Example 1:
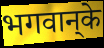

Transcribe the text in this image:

भगवान्‌के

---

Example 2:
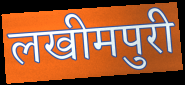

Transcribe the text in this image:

लखीमपुरी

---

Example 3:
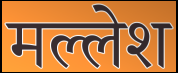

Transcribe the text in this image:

मल्लेश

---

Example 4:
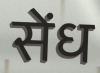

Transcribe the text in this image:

सेंध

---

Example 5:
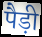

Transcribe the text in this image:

पैड़ी